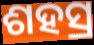
ଶହସ୍ର